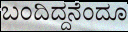
ಬಂದಿದ್ದನೆಂದೂ